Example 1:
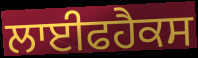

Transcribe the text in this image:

ਲਾਈਫਹੈਕਸ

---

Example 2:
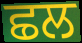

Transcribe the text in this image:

ਛਲ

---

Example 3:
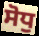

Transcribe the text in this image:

ਸੋਧੁ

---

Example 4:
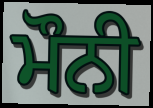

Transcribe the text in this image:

ਮੌਨੀ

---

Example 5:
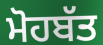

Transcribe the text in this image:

ਮੋਹਬੱਤ